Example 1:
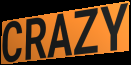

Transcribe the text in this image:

CRAZY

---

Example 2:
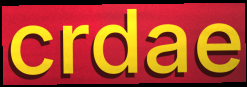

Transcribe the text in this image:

crdae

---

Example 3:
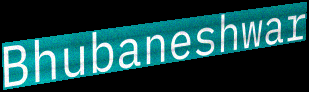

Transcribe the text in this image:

Bhubaneshwar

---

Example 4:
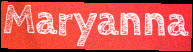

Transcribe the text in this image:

Maryanna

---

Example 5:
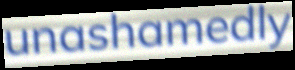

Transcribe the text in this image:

unashamedly